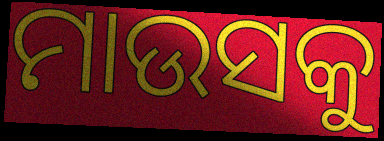
ମାଉସକୁ